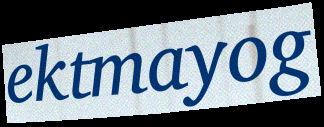
ektmayog